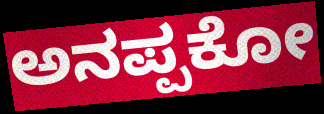
ಅನಪ್ಪಕೋ